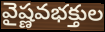
వైష్ణవభక్తుల